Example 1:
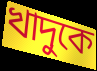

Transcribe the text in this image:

খাদুকে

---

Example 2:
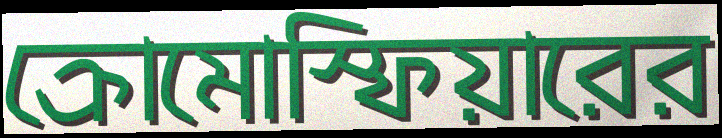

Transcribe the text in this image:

ক্রোমোস্ফিয়ারের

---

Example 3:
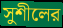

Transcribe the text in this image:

সুশীলের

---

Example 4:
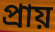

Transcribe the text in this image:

প্রায়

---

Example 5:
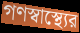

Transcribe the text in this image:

গণস্বাস্থ্যের